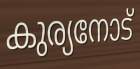
കുര്യനോട്